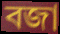
বজা